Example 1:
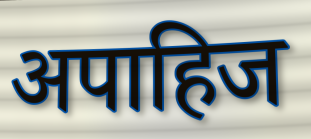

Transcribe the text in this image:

अपाहिज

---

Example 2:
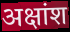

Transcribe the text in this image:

अक्षांश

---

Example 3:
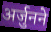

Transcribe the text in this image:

अर्जुनने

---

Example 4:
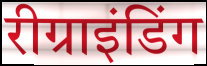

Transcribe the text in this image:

रीग्राइंडिंग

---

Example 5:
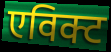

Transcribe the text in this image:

एविक्ट